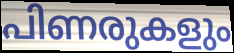
പിണരുകളും